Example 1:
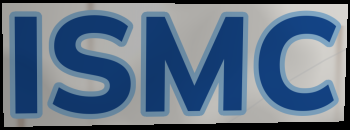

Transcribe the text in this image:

ISMC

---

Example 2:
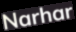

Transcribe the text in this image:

Narhar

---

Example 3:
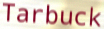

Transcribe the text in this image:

Tarbuck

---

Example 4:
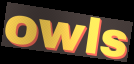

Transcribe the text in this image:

owls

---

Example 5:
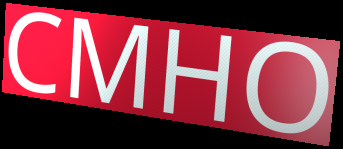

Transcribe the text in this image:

CMHO